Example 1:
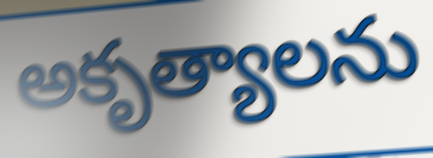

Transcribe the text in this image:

అకృత్యాలను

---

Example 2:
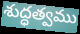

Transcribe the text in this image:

శుద్ధత్వము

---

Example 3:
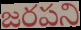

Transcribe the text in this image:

జరపని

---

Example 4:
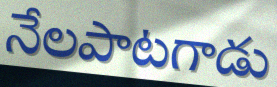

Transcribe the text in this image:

నేలపాటగాడు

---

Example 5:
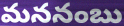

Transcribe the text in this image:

మననంబు